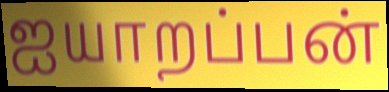
ஐயாறப்பன்